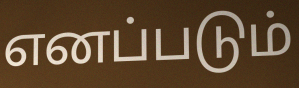
எனப்படும்